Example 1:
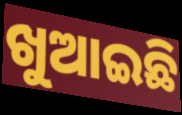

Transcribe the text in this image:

ଖୁଆଇଛି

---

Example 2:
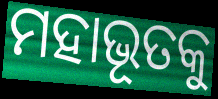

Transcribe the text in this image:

ମହାଭୂତକୁ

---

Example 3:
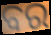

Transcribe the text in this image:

ବର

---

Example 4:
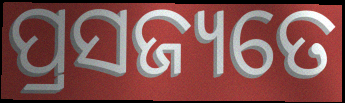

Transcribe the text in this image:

ପ୍ରସଜ୍ୟତେ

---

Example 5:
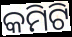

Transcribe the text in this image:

କମିଟି